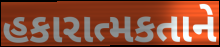
હકારાત્મકતાને